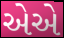
એએ